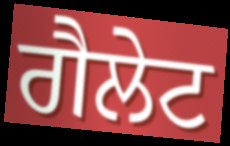
ਗੈਲੇਟ